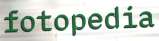
fotopedia